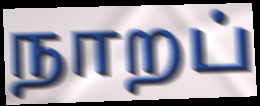
நாறப்